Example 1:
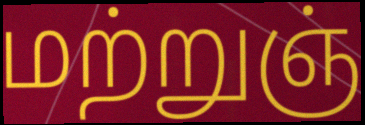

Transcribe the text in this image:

மற்றுஞ்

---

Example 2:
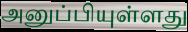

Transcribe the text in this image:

அனுப்பியுள்ளது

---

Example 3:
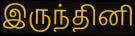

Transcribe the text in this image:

இருந்தினி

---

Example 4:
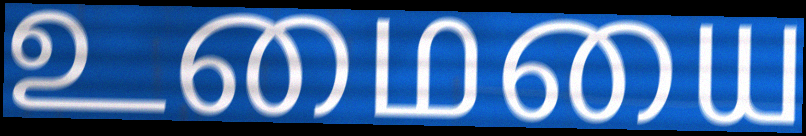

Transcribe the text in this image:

உமையை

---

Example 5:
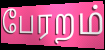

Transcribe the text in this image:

பேரறம்